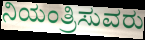
ನಿಯಂತ್ರಿಸುವರು